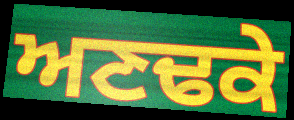
ਅਣਢਕੇ